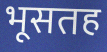
भूसतह